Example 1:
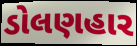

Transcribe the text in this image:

ડોલણહાર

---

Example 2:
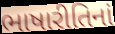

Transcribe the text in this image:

ભાષારીતિનાં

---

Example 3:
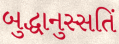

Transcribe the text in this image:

બુદ્ધાનુસ્સતિં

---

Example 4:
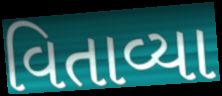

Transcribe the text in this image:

વિતાવ્યા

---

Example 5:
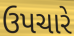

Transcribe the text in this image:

ઉપચારે